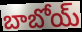
బాబోయ్